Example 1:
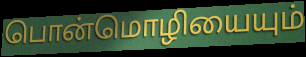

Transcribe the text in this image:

பொன்மொழியையும்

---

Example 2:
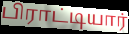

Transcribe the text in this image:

பிராட்டியார்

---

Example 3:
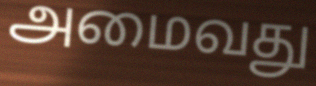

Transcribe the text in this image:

அமைவது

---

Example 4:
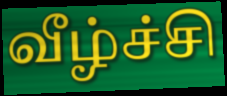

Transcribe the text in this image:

வீழ்ச்சி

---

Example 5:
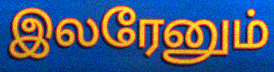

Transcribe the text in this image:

இலரேனும்